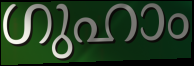
ഗുഹാം